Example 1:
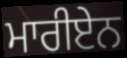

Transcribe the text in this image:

ਮਾਰੀਏਨ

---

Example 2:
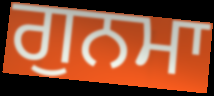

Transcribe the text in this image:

ਗੁਨਮਾ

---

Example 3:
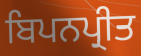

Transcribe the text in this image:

ਬਿਪਨਪ੍ਰੀਤ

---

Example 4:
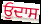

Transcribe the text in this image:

ਓੁਦਾਸ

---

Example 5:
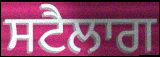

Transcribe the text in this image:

ਸਟੈਲਾਗ